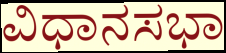
ವಿಧಾನಸಭಾ